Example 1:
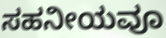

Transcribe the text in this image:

ಸಹನೀಯವೂ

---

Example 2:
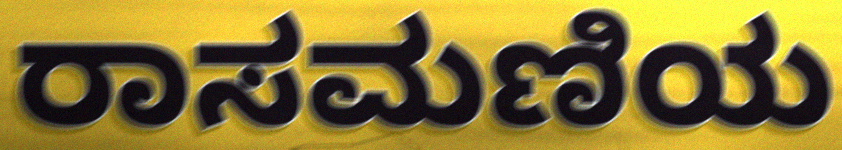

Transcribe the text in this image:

ರಾಸಮಣಿಯ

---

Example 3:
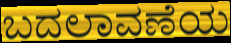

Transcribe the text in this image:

ಬದಲಾವಣೆಯ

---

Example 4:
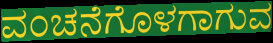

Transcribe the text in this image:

ವಂಚನೆಗೊಳಗಾಗುವ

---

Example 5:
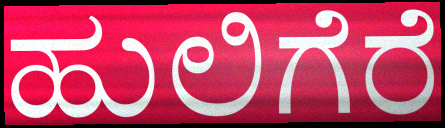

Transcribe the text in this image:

ಹುಲಿಗೆರೆ